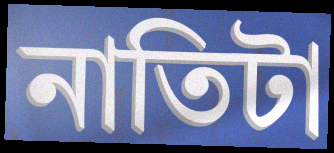
নাতিটা